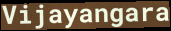
Vijayangara